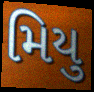
મિયુ